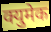
क्युमेक